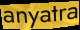
anyatra